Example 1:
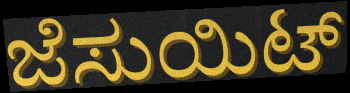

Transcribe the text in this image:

ಜೆಸುಯಿಟ್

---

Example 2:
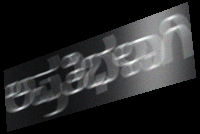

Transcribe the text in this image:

ಅಪ್ರತಿಭಳಾಗಿ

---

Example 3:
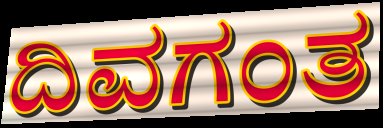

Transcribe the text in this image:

ದಿವಗಂತ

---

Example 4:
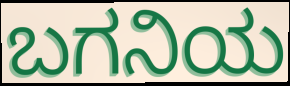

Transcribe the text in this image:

ಬಗನಿಯ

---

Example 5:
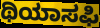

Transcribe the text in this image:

ಥಿಯಾಸಫಿ